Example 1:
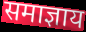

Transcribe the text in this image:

समाज्ञाय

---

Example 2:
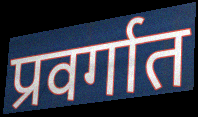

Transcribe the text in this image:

प्रवर्गात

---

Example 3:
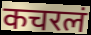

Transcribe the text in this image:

कचरलं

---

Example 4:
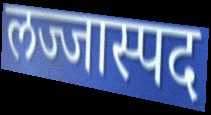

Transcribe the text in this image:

लज्जास्पद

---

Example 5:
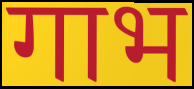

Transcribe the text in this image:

गाभ